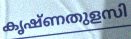
കൃഷ്ണതുളസി